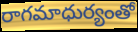
రాగమాధుర్యంతో